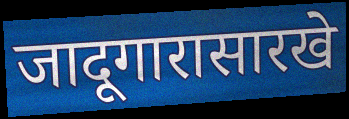
जादूगारासारखे